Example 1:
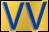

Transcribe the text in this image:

VV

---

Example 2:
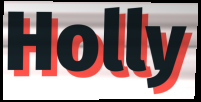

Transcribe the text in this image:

Holly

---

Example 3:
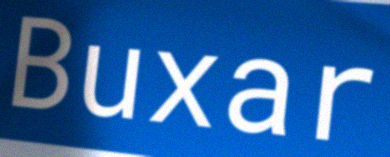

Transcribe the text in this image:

Buxar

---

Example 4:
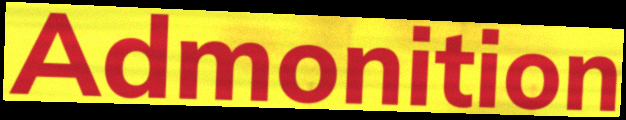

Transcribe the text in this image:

Admonition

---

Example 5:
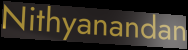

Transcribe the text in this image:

Nithyanandan